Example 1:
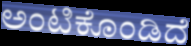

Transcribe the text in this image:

ಅಂಟಿಕೊಂಡಿದೆ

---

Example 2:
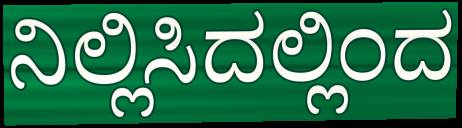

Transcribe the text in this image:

ನಿಲ್ಲಿಸಿದಲ್ಲಿಂದ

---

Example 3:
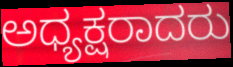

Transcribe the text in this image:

ಅಧ್ಯಕ್ಷರಾದರು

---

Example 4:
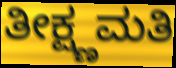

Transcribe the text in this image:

ತೀಕ್ಷ್ಣಮತಿ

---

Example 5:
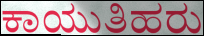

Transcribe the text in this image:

ಕಾಯುತಿಹರು